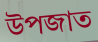
উপজাত